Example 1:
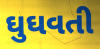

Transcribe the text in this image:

ઘુઘવતી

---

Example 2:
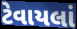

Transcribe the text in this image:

ટેવાયલાં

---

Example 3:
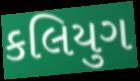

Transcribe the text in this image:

કલિયુગ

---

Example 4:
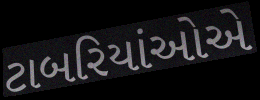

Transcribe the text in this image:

ટાબરિયાંઓએ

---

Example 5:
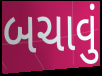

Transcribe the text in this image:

બચાવું